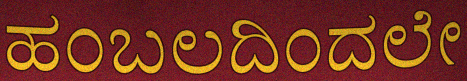
ಹಂಬಲದಿಂದಲೇ